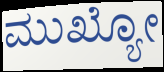
ಮುಖ್ಯೋ